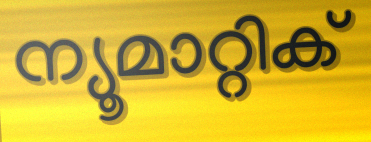
ന്യൂമാറ്റിക്